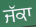
ਜੱਕਾ